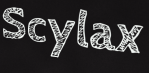
Scylax